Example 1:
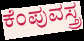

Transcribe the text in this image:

ಕೆಂಪುವಸ್ತ್ರ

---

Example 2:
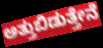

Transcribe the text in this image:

ಅತ್ತುಬಿಡುತ್ತೇನೆ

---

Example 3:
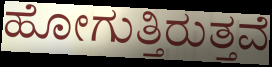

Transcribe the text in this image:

ಹೋಗುತ್ತಿರುತ್ತವೆ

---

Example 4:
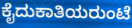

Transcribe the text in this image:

ಕೈದುಕಾತಿಯರುಂಟೆ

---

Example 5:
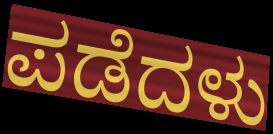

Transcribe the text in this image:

ಪಡೆದಳು